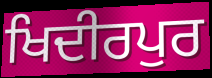
ਖਿਦੀਰਪੁਰ